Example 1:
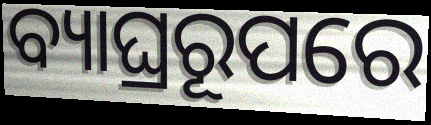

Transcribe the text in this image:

ବ୍ୟାଘ୍ରରୂପରେ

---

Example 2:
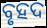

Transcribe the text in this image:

ବୃହଦ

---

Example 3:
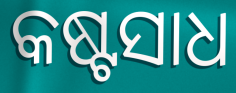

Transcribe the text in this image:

କଷ୍ଟସାଧ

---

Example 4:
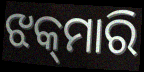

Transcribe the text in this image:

ଝକ୍‌ମାରି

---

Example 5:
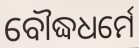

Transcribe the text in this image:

ବୌଦ୍ଧଧର୍ମେ